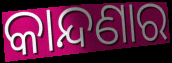
କାନ୍ଦଣାର